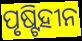
ପୃଷ୍ଟିହୀନ